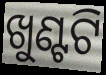
ଖୁଣ୍ଟଟି